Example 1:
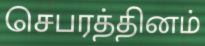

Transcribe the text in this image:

செபரத்தினம்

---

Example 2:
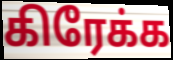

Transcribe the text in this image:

கிரேக்க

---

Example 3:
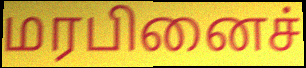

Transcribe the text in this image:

மரபினைச்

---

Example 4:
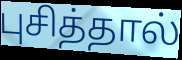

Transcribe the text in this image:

புசித்தால்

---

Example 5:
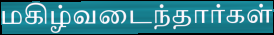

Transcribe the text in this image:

மகிழ்வடைந்தார்கள்